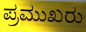
ಪ್ರಮುಖರು